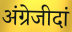
अंग्रेजीदां